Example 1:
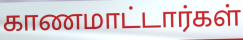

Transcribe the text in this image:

காணமாட்டார்கள்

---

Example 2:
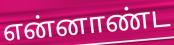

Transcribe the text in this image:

என்னாண்ட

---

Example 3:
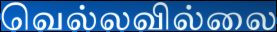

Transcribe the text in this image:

வெல்லவில்லை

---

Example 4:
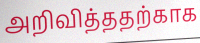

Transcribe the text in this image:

அறிவித்ததற்காக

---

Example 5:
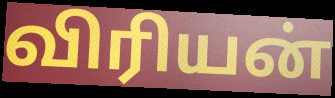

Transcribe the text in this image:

விரியன்